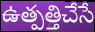
ఉత్పత్తిచేసే